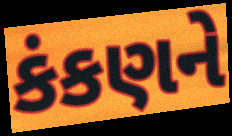
કંકણને